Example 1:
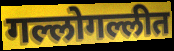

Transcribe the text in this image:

गल्लोगल्लीत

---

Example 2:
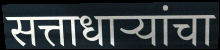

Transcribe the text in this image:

सत्ताधाऱ्यांचा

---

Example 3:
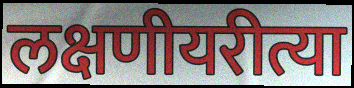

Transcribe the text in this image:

लक्षणीयरीत्या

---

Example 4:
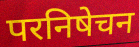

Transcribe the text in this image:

परनिषेचन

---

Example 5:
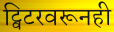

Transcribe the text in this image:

ट्विटरवरूनही